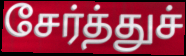
சேர்த்துச்